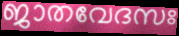
ജാതവേദസഃ